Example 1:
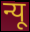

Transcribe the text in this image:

न्यू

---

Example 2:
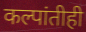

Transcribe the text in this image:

कल्पांतीही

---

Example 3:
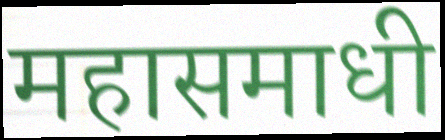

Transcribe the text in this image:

महासमाधी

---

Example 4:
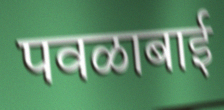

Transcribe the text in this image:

पवळाबाई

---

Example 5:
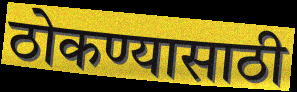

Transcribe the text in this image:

ठोकण्यासाठी